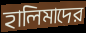
হালিমাদের